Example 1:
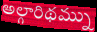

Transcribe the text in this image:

అల్గారిథమ్ను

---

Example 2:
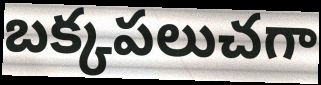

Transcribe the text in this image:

బక్కపలుచగా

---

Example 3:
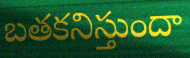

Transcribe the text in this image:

బతకనిస్తుందా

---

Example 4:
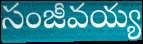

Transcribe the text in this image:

సంజీవయ్య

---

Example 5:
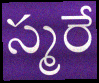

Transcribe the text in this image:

స్మరే